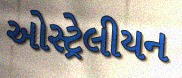
ઓસ્ટ્રેલીયન